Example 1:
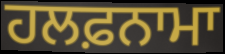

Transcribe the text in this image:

ਹਲਫ਼ਨਾਮਾ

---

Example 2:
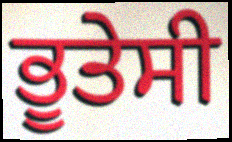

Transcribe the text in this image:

ਭੂਤੇਸੀ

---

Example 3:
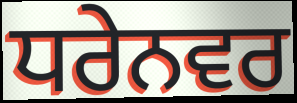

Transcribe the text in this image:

ਧਰੇਨਵਰ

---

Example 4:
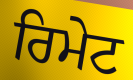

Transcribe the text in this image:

ਰਿਮੇਟ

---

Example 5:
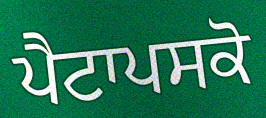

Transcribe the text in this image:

ਪੈਟਾਪਸਕੋ